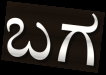
ಬಗ